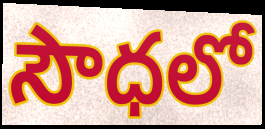
సౌధలో